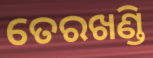
ତେରଖଣ୍ଡି